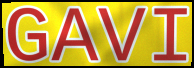
GAVI